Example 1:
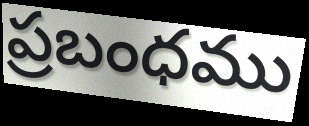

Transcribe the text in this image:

ప్రబంధము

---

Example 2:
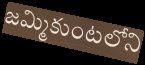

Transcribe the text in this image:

జమ్మికుంటలోని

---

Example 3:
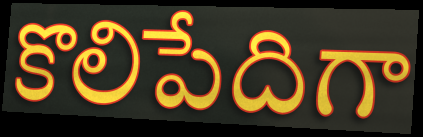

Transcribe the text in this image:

కొలిపేదిగా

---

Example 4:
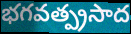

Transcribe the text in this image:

భగవత్ప్రసాద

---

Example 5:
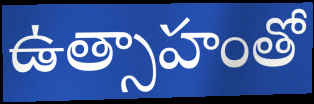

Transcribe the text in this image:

ఉత్సాహంతో